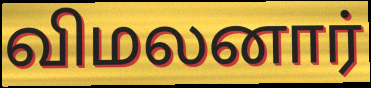
விமலனார்